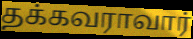
தக்கவராவார்